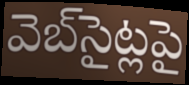
వెబ్‌సైట్లపై